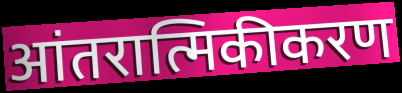
आंतरात्मिकीकरण